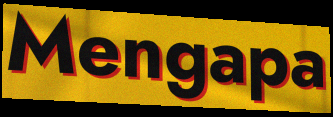
Mengapa